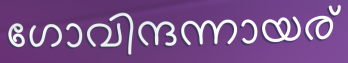
ഗോവിന്ദന്നായര്